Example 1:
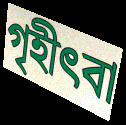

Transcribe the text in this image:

গৃহীৎবা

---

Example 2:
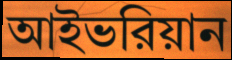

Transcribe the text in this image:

আইভরিয়ান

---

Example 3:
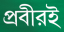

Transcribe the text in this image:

প্রবীরই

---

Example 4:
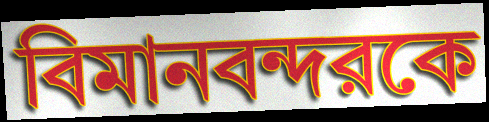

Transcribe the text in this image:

বিমানবন্দরকে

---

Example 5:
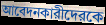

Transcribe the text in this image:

আবেদনকারীদেরকে